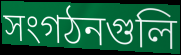
সংগঠনগুলি